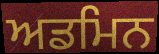
ਅਡਮਿਨ